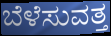
ಬೆಳೆಸುವತ್ತ